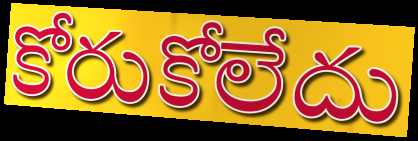
కోరుకోలేదు